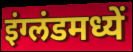
इंग्लंडमध्यें